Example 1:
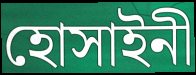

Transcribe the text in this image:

হোসাইনী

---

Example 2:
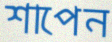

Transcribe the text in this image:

শাপেন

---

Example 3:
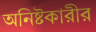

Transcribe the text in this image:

অনিষ্টকারীর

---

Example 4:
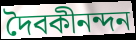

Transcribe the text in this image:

দৈবকীনন্দন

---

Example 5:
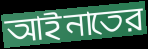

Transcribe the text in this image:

আইনাতের